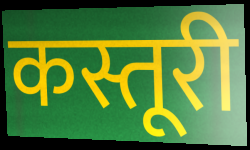
कस्तूरी